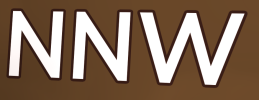
NNW